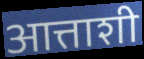
आत्ताशी